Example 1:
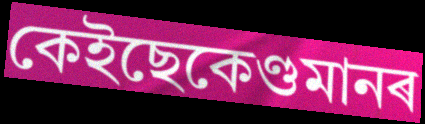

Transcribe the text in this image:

কেইছেকেণ্ডমানৰ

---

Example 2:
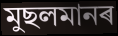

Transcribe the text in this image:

মুছলমানৰ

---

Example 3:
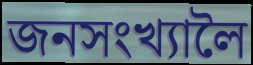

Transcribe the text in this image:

জনসংখ্যালৈ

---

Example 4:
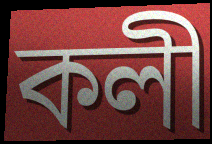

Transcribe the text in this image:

কলী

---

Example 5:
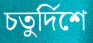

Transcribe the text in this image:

চতুৰ্দিশে